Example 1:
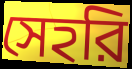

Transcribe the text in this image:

সেহরি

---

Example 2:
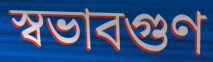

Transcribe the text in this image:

স্বভাবগুণ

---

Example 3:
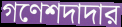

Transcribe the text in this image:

গণেশদাদার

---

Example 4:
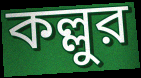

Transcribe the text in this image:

কল্লুর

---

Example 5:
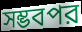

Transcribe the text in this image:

সম্ভবপর